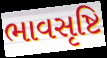
ભાવસૃષ્ટિ